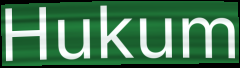
Hukum